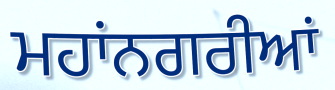
ਮਹਾਂਨਗਰੀਆਂ